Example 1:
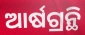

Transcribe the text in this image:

ଆର୍ଷଗ୍ରନ୍ଥି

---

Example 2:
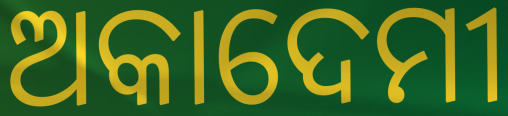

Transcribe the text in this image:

ଅକାଦେମୀ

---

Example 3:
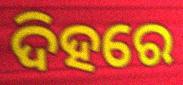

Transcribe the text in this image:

ଦିହରେ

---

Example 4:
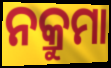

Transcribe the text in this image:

ନକ୍ରୁମା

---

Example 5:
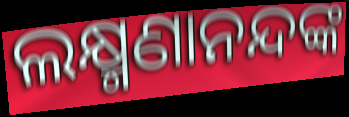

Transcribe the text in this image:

ଲକ୍ଷ୍ମଣାନନ୍ଦଙ୍କ